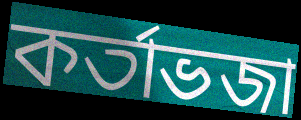
কর্তাভজা